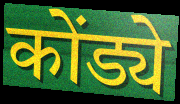
कोंड्ये